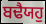
ਬਢੈਯਹੁ